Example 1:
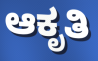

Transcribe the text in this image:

ಆಕೃತಿ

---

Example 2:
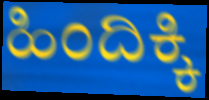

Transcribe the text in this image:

ಹಿಂದಿಕ್ಕಿ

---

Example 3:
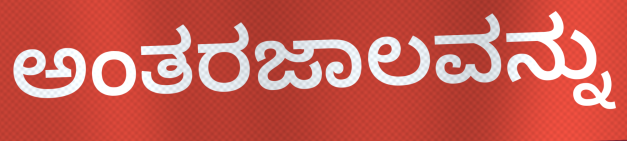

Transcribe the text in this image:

ಅಂತರಜಾಲವನ್ನು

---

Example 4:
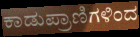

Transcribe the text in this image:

ಕಾಡುಪ್ರಾಣಿಗಳಿಂದ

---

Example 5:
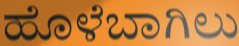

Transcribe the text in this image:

ಹೊಳೆಬಾಗಿಲು